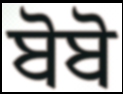
ਬੋਬੋ